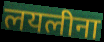
लयलीना